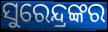
ସୁରେନ୍ଦ୍ରଙ୍କର